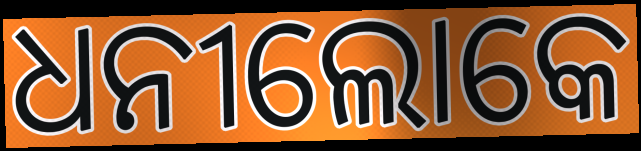
ଧନୀଲୋକେ